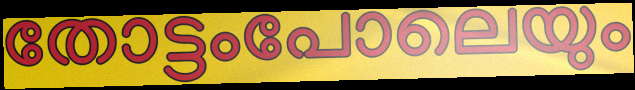
തോട്ടംപോലെയും